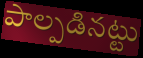
పాల్పడినట్టు